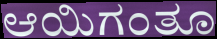
ಆಯಿಗಂತೂ